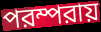
পরম্পরায়